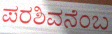
ಪರಶಿವನೆಂಬ